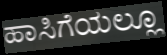
ಹಾಸಿಗೆಯಲ್ಲೂ